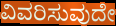
ವಿವರಿಸುವುದೇ